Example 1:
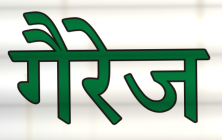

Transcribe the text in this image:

गैरेज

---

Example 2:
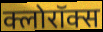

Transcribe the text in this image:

क्लोरॉक्स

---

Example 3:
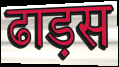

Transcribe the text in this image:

ढाड़स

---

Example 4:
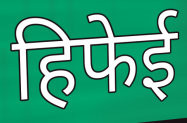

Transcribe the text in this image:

हिफेई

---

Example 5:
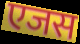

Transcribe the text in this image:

एजस